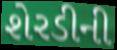
શેરડીની